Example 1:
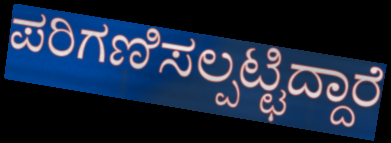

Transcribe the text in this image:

ಪರಿಗಣಿಸಲ್ಪಟ್ಟಿದ್ದಾರೆ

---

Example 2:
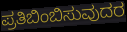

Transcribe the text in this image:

ಪ್ರತಿಬಿಂಬಿಸುವುದರ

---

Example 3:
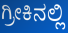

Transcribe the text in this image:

ಗ್ರೀಕಿನಲ್ಲಿ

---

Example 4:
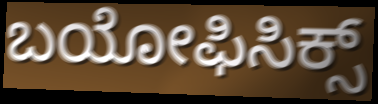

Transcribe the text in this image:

ಬಯೋಫಿಸಿಕ್ಸ್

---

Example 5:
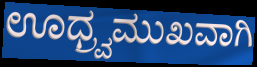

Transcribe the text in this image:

ಊಧ್ರ್ವಮುಖವಾಗಿ